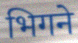
भिगने